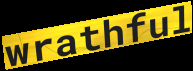
wrathful